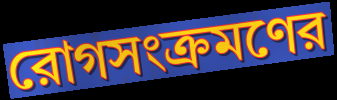
রোগসংক্রমণের